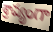
శ్రావ్యంగా